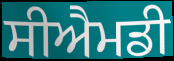
ਸੀਐਮਡੀ